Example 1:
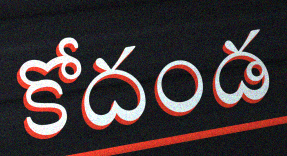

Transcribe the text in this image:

కోదండ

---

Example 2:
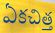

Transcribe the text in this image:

ఏకచిత్త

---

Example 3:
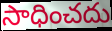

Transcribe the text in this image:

సాధించదు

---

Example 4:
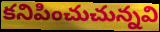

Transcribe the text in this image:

కనిపించుచున్నవి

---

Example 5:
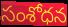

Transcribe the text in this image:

సంశోధన